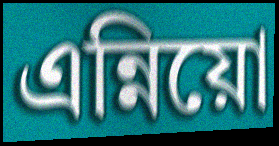
এন্নিয়ো